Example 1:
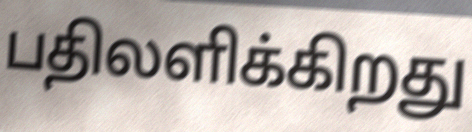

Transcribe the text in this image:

பதிலளிக்கிறது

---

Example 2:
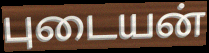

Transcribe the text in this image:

புடையன்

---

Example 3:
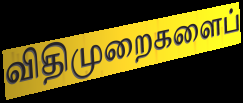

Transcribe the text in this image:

விதிமுறைகளைப்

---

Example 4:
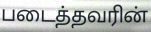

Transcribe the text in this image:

படைத்தவரின்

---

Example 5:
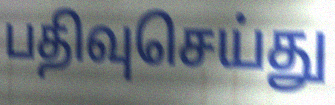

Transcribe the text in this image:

பதிவுசெய்து